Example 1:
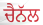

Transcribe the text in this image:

ਚੈਨੱਲ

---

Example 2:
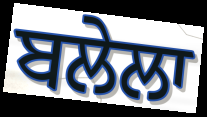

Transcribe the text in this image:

ਬਲੇਲਾ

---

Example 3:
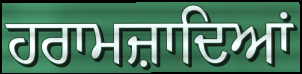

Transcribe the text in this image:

ਹਰਾਮਜ਼ਾਦਿਆਂ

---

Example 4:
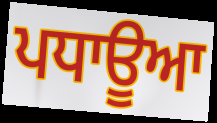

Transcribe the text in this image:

ਪਧਾਊਆ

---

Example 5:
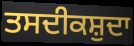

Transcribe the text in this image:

ਤਸਦੀਕਸ਼ੁਦਾ